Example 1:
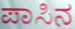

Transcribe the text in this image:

ಪಾಸಿನ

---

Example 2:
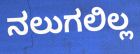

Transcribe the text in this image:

ನಲುಗಲಿಲ್ಲ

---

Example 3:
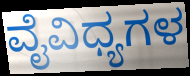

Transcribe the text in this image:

ವೈವಿಧ್ಯಗಳ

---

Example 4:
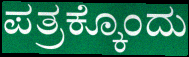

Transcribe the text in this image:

ಪತ್ರಕ್ಕೊಂದು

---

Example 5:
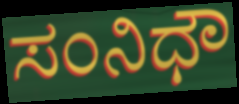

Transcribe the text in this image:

ಸಂನಿಧೌ